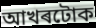
আখৰটোক